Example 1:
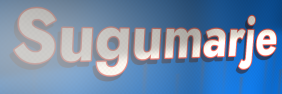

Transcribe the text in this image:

Sugumarje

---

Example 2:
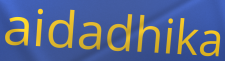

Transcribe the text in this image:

aidadhika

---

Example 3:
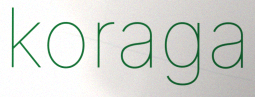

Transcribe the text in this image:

koraga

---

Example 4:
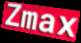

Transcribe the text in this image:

Zmax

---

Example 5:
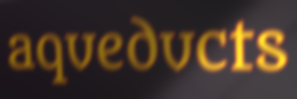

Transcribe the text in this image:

aqueducts